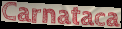
Carnataca